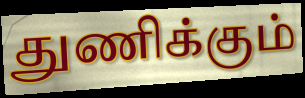
துணிக்கும்